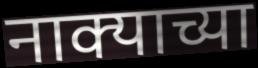
नाक्याच्या